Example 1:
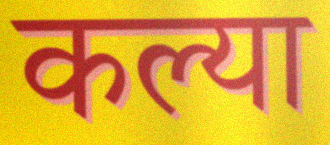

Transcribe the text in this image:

कल्या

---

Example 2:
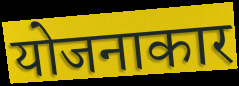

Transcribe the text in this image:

योजनाकार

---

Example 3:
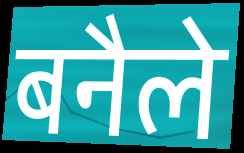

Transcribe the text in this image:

बनैले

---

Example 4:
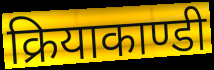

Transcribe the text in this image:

क्रियाकाण्डी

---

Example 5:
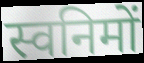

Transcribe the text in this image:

स्वनिमों